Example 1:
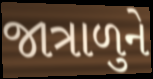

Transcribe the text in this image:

જાત્રાળુને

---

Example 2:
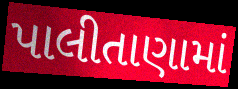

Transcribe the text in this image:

પાલીતાણામાં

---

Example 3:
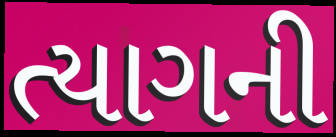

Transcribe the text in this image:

ત્‍યાગની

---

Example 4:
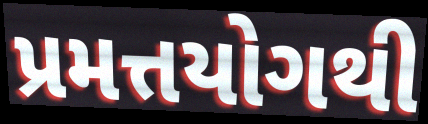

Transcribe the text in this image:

પ્રમત્તયોગથી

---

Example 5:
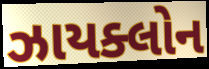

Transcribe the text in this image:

ઝાયક્લોન